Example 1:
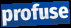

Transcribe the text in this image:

profuse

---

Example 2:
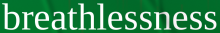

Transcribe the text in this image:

breathlessness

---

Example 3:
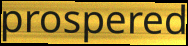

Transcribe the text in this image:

prospered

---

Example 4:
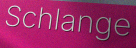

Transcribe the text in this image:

Schlange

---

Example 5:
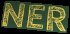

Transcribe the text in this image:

NER